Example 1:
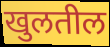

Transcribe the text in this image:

खुलतील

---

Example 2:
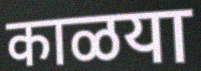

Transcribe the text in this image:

काळया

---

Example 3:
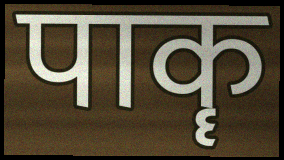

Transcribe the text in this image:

पाकॄ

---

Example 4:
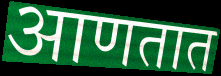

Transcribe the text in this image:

आणतात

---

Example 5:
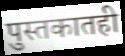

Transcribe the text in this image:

पुस्तकातही